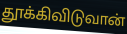
தூக்கிவிடுவான்